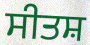
ਸੀਤਸ਼